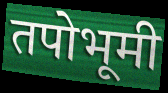
तपोभूमी